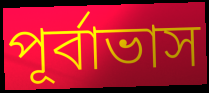
পূর্বাভাস